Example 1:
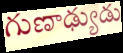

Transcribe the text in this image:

గుణాఢ్యుడు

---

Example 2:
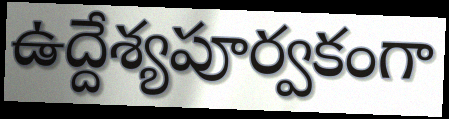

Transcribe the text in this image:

ఉద్దేశ్యపూర్వకంగా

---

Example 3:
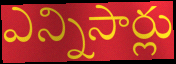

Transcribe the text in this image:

ఎన్నిసార్లు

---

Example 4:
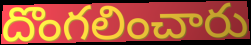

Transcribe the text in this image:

దొంగలించారు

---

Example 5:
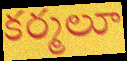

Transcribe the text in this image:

కర్మలూ